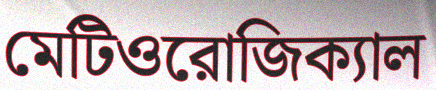
মেটিওরোজিক্যাল